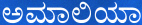
ಅಮಾಲಿಯಾ